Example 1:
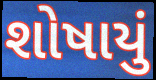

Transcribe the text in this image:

શોષાયું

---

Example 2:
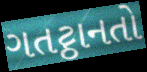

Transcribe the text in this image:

ગતટ્ઠાનતો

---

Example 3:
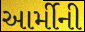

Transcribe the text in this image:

આર્મીની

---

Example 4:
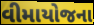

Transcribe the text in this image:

વીમાયોજના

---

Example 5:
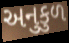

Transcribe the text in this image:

અનુકુળ